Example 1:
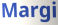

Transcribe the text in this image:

Margi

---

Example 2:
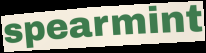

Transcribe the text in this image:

spearmint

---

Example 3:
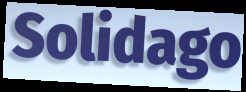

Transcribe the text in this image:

Solidago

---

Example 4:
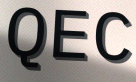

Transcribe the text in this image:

QEC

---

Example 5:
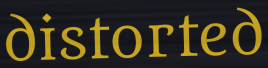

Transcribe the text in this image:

distorted